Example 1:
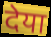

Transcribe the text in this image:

देया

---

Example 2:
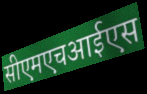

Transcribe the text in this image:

सीएमएचआईएस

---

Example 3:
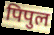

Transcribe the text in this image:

पिपुल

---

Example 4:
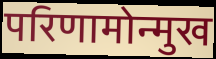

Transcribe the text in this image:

परिणामोन्मुख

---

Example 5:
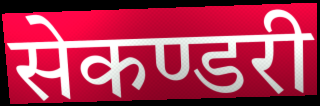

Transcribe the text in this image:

सेकण्‍डरी